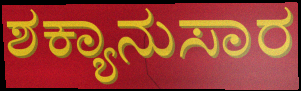
ಶಕ್ಯಾನುಸಾರ